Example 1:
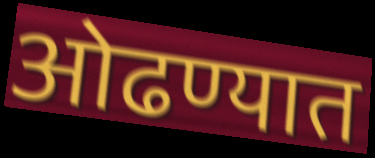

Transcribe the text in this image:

ओढण्यात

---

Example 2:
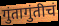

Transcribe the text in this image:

गुंतागुंतीचं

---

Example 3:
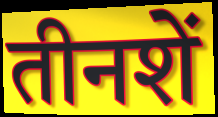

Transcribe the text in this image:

तीनशें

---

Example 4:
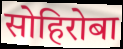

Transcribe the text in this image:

सोहिरोबा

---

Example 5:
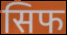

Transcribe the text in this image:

सिफ